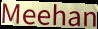
Meehan